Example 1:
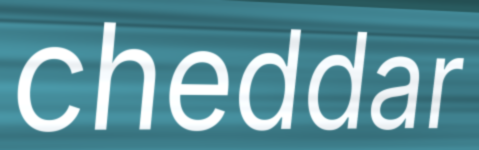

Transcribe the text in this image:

cheddar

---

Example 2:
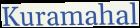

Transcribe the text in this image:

Kuramahal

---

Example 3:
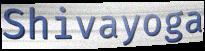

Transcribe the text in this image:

Shivayoga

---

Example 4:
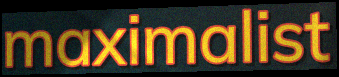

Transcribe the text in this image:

maximalist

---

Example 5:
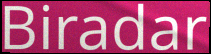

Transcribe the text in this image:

Biradar